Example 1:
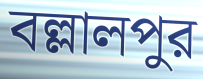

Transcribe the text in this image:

বল্লালপুর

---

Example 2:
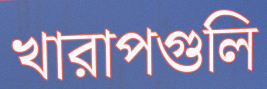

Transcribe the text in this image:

খারাপগুলি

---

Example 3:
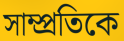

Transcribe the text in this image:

সাম্প্রতিকে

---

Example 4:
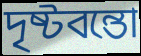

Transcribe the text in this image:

দৃষ্টবন্তো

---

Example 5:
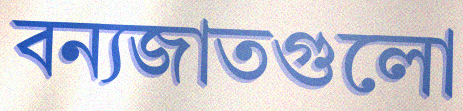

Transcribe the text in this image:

বন্যজাতগুলো